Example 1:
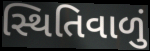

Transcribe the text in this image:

સ્થિતિવાળું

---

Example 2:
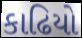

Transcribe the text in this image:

કાઢિયો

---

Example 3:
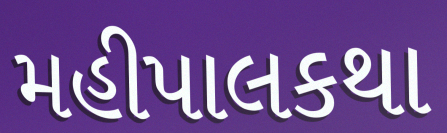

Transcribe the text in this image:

મહીપાલકથા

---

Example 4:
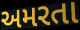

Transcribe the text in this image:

અમરતા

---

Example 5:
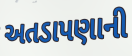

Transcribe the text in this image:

અતડાપણાની